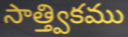
సాత్త్వికము